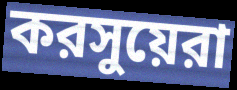
করসুয়েরা